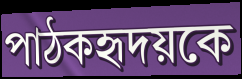
পাঠকহৃদয়কে